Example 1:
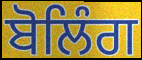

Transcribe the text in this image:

ਬੋਲਿੰਗ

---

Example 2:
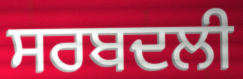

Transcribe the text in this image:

ਸਰਬਦਲੀ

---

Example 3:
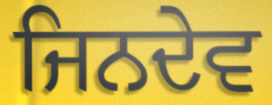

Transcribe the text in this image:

ਜਿਨਦੇਵ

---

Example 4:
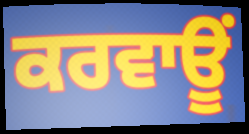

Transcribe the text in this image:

ਕਰਵਾਊਂ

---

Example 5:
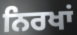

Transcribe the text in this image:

ਨਿਰਖਾਂ